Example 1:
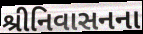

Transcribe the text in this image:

શ્રીનિવાસનના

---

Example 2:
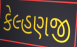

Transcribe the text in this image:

કેલ્હણજી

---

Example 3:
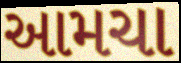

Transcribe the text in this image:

આમચા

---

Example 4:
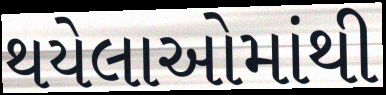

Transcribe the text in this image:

થયેલાઓમાંથી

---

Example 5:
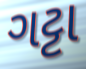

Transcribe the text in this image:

ગટ્ટા